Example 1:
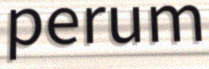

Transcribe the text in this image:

perum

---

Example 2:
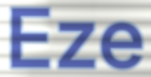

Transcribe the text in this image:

Eze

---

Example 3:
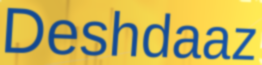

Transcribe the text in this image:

Deshdaaz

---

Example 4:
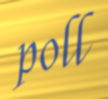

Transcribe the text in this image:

poll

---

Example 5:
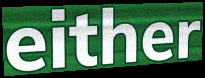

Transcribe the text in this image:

either